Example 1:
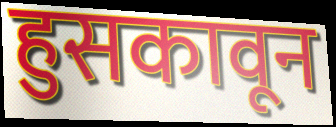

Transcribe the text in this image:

हुसकावून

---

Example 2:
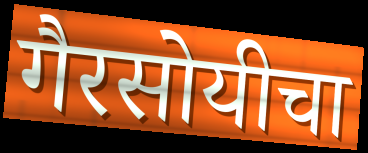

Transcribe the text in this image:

गैरसोयीचा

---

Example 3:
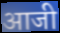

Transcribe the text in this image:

आजी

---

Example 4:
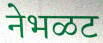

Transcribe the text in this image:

नेभळट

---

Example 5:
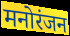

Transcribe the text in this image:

मनोरंजन